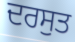
ਦਰਸੁਤ